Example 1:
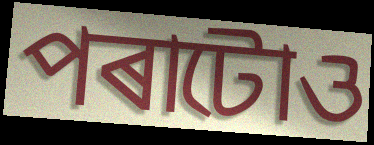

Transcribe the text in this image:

পৰাটোও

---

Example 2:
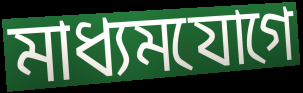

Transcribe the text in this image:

মাধ্যমযোগে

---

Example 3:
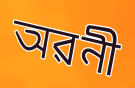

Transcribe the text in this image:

অৱনী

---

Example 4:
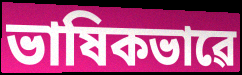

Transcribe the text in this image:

ভাষিকভাৱে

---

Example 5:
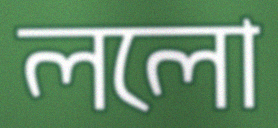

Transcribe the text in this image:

ললো